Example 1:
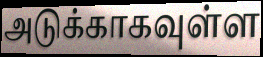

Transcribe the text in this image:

அடுக்காகவுள்ள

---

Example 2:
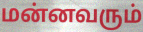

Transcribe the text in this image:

மன்னவரும்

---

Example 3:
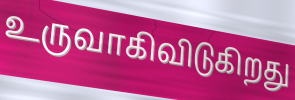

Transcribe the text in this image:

உருவாகிவிடுகிறது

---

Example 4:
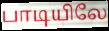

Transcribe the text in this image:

பாடியிலே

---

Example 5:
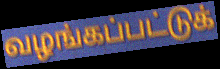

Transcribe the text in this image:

வழங்கப்பட்டுக்